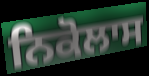
ਨਿਕੋਲਾਸ